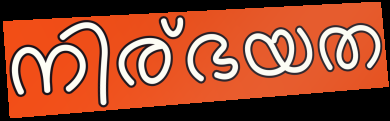
നിര്ഭയത